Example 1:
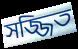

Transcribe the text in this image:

সজ্জিত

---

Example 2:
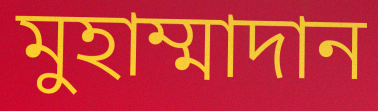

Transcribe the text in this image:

মুহাম্মাদান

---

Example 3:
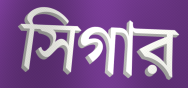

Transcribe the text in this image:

সিগার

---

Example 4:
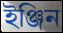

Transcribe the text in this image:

ইঞ্জিন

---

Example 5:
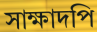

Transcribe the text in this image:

সাক্ষাদপি